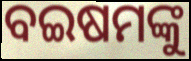
ବଇଷମଙ୍କୁ